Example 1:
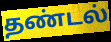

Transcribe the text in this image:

தண்டல்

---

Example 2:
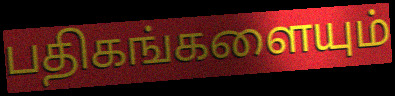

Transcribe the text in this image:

பதிகங்களையும்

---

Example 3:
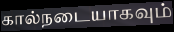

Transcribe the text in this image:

கால்நடையாகவும்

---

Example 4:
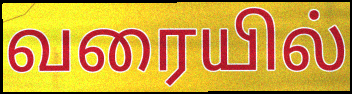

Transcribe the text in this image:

வரையில்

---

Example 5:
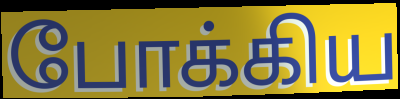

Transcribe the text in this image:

போக்கிய